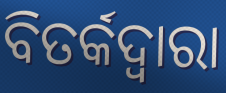
ବିତର୍କଦ୍ୱାରା